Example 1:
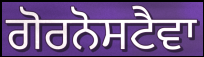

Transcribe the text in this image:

ਗੋਰਨੋਸਟੈਵਾ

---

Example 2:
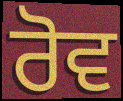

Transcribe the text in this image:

ਰੋਵ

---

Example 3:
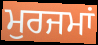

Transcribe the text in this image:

ਮੁਰਜਮਾਂ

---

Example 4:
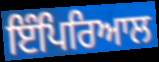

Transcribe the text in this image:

ਇੰਪਿਰਿਆਲ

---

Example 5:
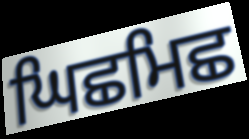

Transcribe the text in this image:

ਘਿਛਮਿਛ